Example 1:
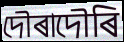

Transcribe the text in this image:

দৌৰাদৌৰি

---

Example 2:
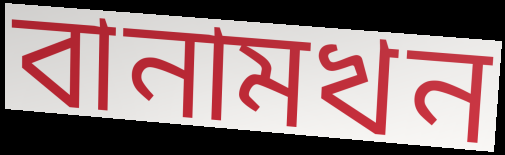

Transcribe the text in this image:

বানামখন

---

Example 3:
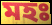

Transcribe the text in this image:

মহঃ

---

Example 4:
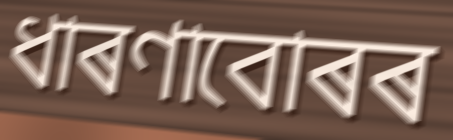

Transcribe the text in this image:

ধাৰণাবোৰৰ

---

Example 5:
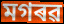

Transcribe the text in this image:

মগৰৱ